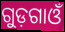
ଗୁଡ଼ଗାଓଁ